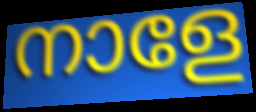
നാളേ